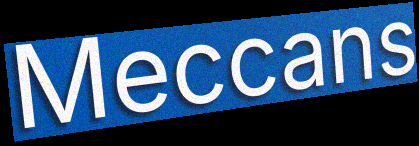
Meccans